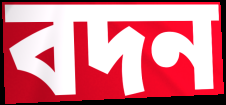
বদন